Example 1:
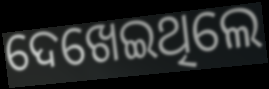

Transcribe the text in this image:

ଦେଖେଇଥିଲେ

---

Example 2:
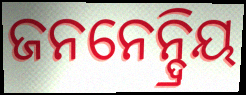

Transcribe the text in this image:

ଜନନେନ୍ଦ୍ରିୟ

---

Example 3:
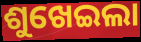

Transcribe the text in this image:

ଶୁଖେଇଲା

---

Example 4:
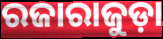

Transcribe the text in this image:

ରଜାରାଜୁଡ଼ା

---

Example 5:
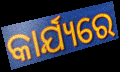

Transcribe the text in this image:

କାର୍ଯ୍ଯରେ